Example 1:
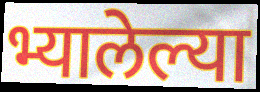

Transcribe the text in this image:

भ्यालेल्या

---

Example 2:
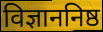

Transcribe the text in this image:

विज्ञाननिष्ठ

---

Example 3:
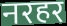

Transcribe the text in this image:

नरहर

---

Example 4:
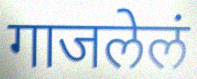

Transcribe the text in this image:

गाजलेलं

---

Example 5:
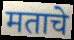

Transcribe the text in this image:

मताचे